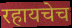
रहायचेच